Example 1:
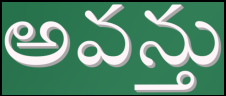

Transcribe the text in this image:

అవన్తు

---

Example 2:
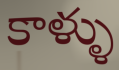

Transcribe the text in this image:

కాళ్ళు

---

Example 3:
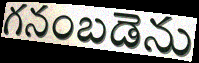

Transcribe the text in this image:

గనంబడెను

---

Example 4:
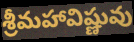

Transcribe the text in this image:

శ్రీమహావిష్ణువు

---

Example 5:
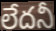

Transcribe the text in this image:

లేదనీ